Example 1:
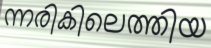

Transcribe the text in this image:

ന്നരികിലെത്തിയ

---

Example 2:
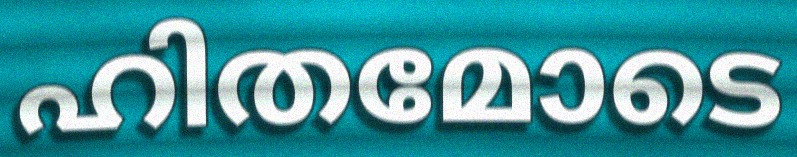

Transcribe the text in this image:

ഹിതമോടെ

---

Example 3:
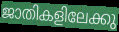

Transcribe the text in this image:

ജാതികളിലേക്കു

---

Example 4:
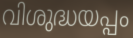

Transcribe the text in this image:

വിശുദ്ധയപ്പം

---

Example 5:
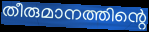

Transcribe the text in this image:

തീരുമാനത്തിന്റെ